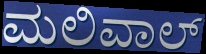
ಮಲಿವಾಲ್